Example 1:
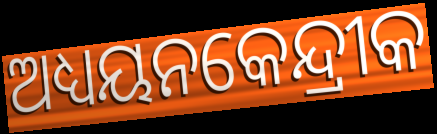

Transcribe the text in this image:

ଅଧ୍ୟୟନକେନ୍ଦ୍ରୀକ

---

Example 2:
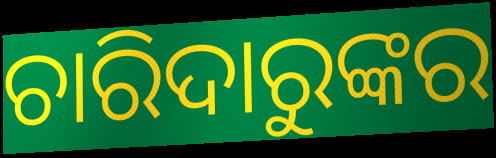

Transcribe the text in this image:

ଚାରିଦାରୁଙ୍କର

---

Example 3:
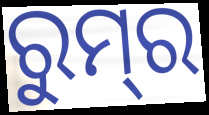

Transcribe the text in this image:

ରୁମ୍‍ର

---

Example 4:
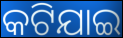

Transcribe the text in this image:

କଟିଯାଇ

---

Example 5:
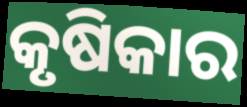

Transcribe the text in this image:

କୃଷିକାର